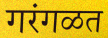
गरंगळत